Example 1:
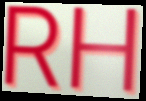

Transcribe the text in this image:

RH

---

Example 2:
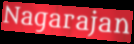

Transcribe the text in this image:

Nagarajan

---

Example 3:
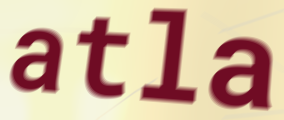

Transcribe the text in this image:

atla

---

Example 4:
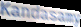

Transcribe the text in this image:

Kandasamy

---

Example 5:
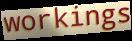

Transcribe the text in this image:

workings